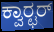
ಕ್ವಾರ‍್ಟರ್